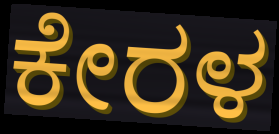
ಕೇರಳ